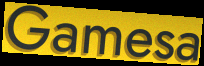
Gamesa